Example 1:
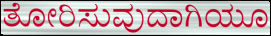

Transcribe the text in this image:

ತೋರಿಸುವುದಾಗಿಯೂ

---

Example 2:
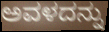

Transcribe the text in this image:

ಅವಳದನ್ನು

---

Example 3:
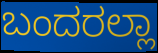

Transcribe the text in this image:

ಬಂದರಲ್ಲಾ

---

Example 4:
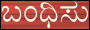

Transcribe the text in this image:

ಬಂಧಿಸು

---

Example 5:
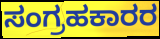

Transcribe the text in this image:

ಸಂಗ್ರಹಕಾರರ